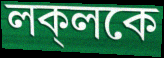
লক্‌লকে